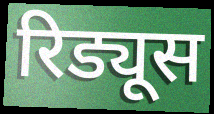
रिड्यूस